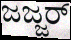
ಜಜ್ಜರ್